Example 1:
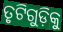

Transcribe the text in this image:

ତୃଟିଗୁଡ଼ିକୁ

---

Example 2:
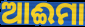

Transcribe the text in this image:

ଆଈମା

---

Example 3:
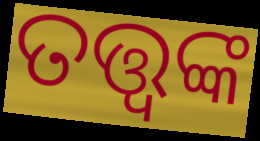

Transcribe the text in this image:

ତତ୍ତ୍ବଙ୍କ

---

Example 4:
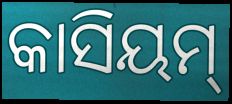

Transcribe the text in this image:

କାସିୟମ୍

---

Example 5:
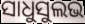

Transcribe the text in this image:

ସାଧୁସୁଲଭ